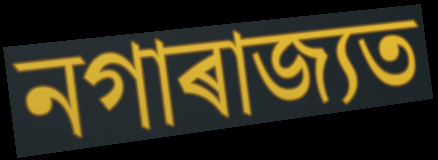
নগাৰাজ্যত